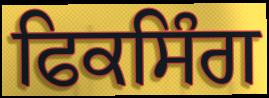
ਫਿਕਸਿੰਗ